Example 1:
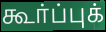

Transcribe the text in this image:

கூர்ப்புக்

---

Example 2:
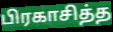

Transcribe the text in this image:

பிரகாசித்த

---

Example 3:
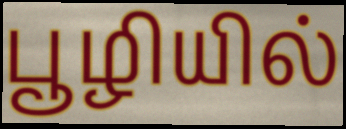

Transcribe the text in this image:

பூழியில்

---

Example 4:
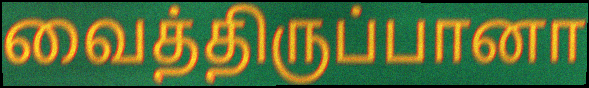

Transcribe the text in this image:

வைத்திருப்பானா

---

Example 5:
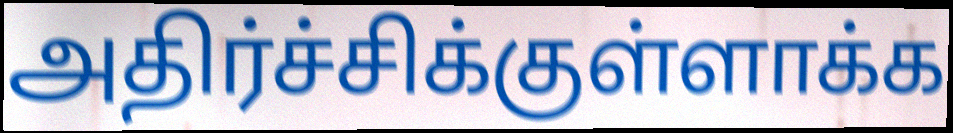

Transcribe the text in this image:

அதிர்ச்சிக்குள்ளாக்க